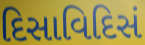
દિસાવિદિસં